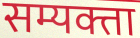
सम्यक्ता